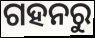
ଗହନରୁ